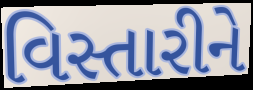
વિસ્તારીને